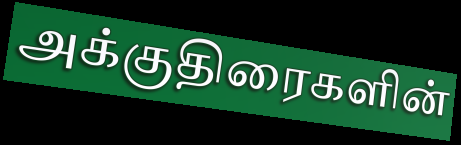
அக்குதிரைகளின்